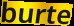
burte